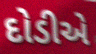
દોડીએ